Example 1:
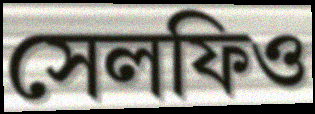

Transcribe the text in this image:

সেলফিও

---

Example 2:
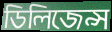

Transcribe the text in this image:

ডিলিজেন্স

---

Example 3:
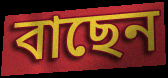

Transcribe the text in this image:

বাছেন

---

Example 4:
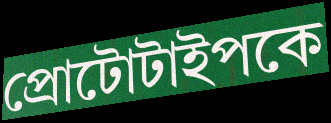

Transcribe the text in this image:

প্রোটোটাইপকে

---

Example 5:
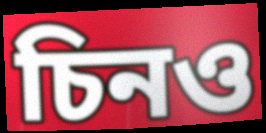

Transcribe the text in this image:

চিনও